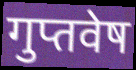
गुप्तवेष